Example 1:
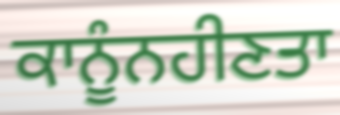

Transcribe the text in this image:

ਕਾਨੂੰਨਹੀਣਤਾ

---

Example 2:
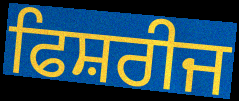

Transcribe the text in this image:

ਫਿਸ਼ਰੀਜ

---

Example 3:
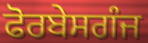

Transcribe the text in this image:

ਫੋਰਬੇਸਗੰਜ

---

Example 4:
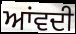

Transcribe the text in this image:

ਆਂਵਦੀ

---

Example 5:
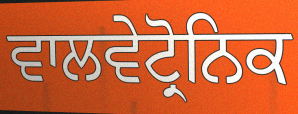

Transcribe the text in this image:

ਵਾਲਵੇਟ੍ਰੋਨਿਕ